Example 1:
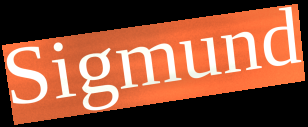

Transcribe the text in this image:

Sigmund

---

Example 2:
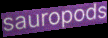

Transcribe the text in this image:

sauropods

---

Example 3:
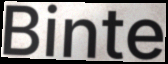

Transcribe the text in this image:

Binte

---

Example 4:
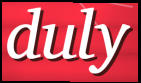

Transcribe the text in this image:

duly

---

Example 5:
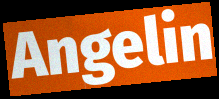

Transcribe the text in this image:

Angelin